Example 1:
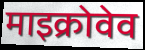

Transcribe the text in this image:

माइक्रोवेव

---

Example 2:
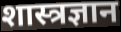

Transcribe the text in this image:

शास्त्रज्ञान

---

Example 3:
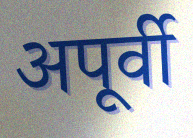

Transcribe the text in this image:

अपूर्वी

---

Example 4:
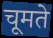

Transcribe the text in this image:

चूमते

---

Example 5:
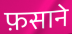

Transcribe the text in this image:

फ़साने